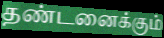
தண்டனைக்கும்